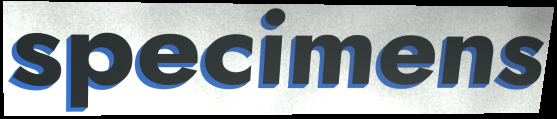
specimens